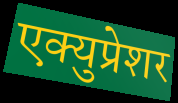
एक्युप्रेशर